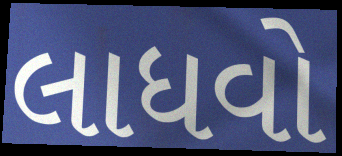
લાધવો